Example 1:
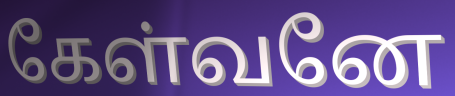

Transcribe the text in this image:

கேள்வனே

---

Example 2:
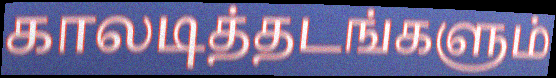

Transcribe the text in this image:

காலடித்தடங்களும்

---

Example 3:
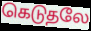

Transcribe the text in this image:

கெடுதலே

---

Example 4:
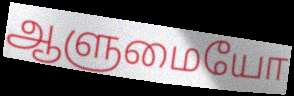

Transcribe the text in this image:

ஆளுமையோ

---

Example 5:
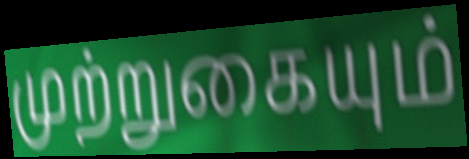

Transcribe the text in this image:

முற்றுகையும்